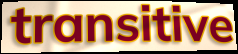
transitive